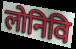
लोनिवि